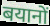
बयानों